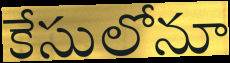
కేసులోనూ